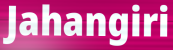
Jahangiri